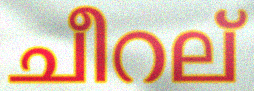
ചീറല്